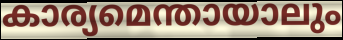
കാര്യമെന്തായാലും